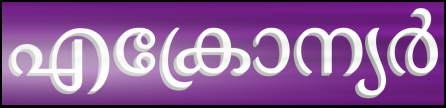
എക്രോന്യർ